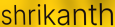
shrikanth